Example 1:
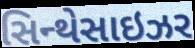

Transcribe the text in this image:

સિન્થેસાઇઝર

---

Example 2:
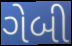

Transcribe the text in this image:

ગેબી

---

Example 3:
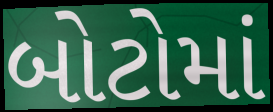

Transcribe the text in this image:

બોટોમાં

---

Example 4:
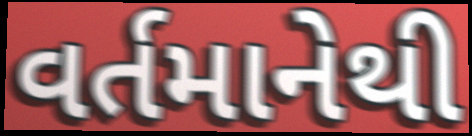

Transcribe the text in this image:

વર્તમાનેથી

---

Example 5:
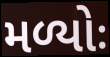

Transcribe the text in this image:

મળ્યોઃ